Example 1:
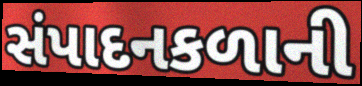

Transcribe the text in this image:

સંપાદનકળાની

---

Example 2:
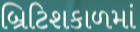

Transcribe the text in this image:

બ્રિટિશકાળમાં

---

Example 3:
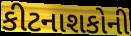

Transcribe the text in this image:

કીટનાશકોની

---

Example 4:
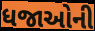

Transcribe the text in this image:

ધજાઓની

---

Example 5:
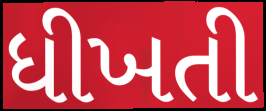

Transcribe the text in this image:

ધીખતી